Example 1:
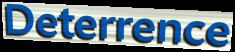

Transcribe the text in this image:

Deterrence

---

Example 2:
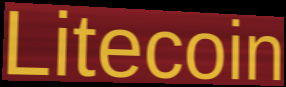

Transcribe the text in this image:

Litecoin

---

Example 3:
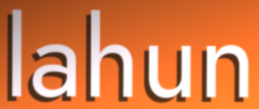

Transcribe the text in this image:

lahun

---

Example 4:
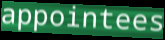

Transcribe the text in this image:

appointees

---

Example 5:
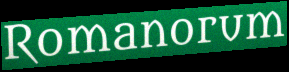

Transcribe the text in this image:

Romanorum